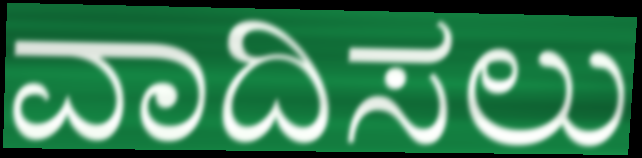
ವಾದಿಸಲು